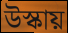
উস্কায়